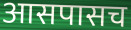
आसपासच